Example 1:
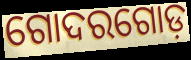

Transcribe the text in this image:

ଗୋଦରଗୋଡ଼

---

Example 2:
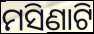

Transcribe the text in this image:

ମସିଣାଟି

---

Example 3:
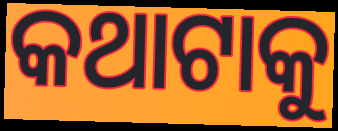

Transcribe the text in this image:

କଥାଟାକୁ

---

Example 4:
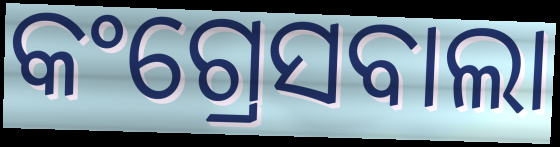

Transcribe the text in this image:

କଂଗ୍ରେସବାଲା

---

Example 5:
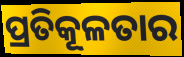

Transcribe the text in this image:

ପ୍ରତିକୂଳତାର